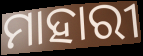
ମାହାରୀ